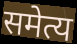
समेत्य